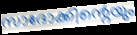
സാദോക്കിന്റെയും